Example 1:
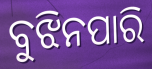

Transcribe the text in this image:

ବୁଝିନପାରି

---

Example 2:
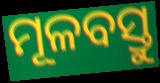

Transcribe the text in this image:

ମୂଳବସ୍ତୁ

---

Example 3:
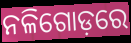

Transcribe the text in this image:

ନଳିଗୋଡ଼ରେ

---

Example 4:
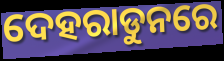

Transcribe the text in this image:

ଦେହରାଡୁନରେ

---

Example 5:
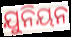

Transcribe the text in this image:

ଯୁନିୟନ